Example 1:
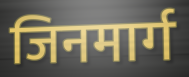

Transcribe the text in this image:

जिनमार्ग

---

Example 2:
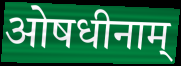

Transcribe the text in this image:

ओषधीनाम्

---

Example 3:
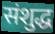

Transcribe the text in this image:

संशुद्ध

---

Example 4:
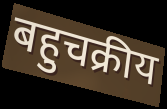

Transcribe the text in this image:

बहुचक्रीय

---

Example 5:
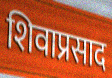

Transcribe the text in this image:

शिवाप्रसाद